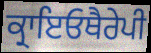
ਕ੍ਰਾਇਓਥੈਰੇਪੀ